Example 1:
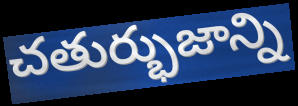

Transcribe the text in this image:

చతుర్భుజాన్ని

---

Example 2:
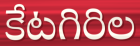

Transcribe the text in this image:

కేటగిరిల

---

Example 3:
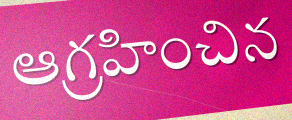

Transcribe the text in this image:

ఆగ్రహించిన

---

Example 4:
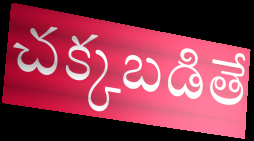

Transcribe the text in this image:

చక్కబడితే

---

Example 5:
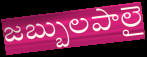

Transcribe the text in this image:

జబ్బులపాలై